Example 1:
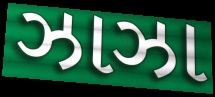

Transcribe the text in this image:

ઝાઝા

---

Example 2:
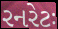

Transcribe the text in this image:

રનરેટઃ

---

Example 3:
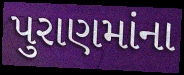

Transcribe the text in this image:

પુરાણમાંના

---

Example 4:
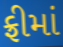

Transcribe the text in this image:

ફ્રીમાં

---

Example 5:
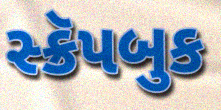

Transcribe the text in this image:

સ્ક્રૅપબુક